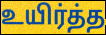
உயிர்த்த